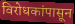
विरोधकांपासून